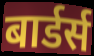
बार्डर्स